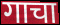
गाचा